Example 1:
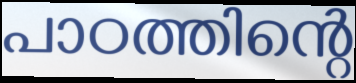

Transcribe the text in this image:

പാഠത്തിന്റെ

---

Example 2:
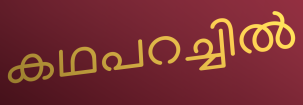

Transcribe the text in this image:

കഥപറച്ചിൽ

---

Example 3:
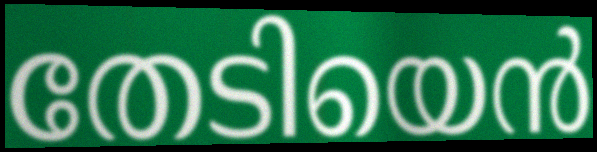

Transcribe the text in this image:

തേടിയെൻ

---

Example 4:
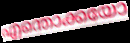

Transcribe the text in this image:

എന്തൊക്കയോ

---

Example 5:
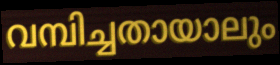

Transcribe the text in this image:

വമ്പിച്ചതായാലും